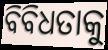
ବିବିଧତାକୁ